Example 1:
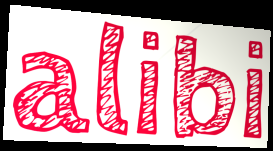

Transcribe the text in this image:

alibi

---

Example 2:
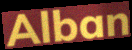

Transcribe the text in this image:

Alban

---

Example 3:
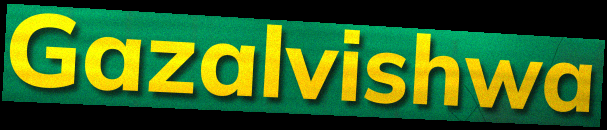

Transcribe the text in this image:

Gazalvishwa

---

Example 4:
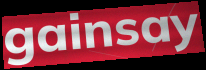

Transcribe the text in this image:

gainsay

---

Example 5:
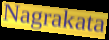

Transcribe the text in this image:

Nagrakata